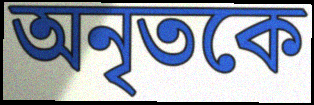
অনৃতকে